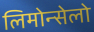
लिमोन्सेलो